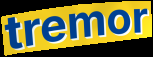
tremor